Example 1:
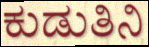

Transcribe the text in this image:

ಕುಡುತಿನಿ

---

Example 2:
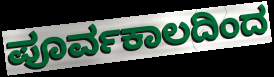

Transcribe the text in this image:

ಪೂರ್ವಕಾಲದಿಂದ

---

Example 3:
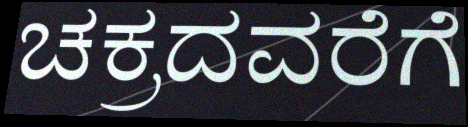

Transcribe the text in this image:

ಚಕ್ರದವರೆಗೆ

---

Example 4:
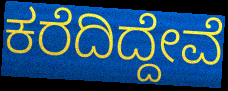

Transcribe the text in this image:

ಕರೆದಿದ್ದೇವೆ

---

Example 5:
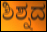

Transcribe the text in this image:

ಶಿಶ್ನದ